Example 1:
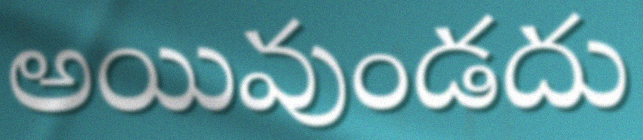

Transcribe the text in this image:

అయివుండదు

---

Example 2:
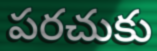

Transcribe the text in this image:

పరచుకు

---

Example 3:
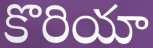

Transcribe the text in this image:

కొరియా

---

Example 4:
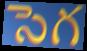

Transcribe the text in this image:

సెగ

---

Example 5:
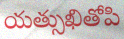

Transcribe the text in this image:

యత్సుఖితోపి